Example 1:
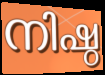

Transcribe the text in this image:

നിഷ്ഠ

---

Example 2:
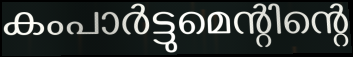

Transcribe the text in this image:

കംപാർട്ടുമെന്റിന്റെ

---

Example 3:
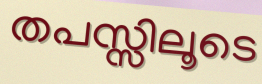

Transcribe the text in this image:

തപസ്സിലൂടെ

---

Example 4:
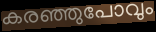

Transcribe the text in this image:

കരഞ്ഞുപോവും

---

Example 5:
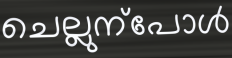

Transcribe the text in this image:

ചെല്ലുന്പോൾ